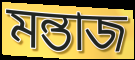
মন্তাজ